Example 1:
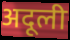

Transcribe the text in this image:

अदूली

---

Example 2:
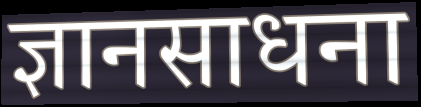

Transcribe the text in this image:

ज्ञानसाधना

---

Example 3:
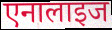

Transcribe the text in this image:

एनालाइज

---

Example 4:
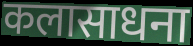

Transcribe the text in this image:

कलासाधना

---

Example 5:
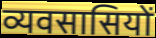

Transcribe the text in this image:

व्यवसासियों